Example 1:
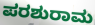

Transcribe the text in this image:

ಪರಶುರಾಮ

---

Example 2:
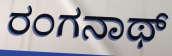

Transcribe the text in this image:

ರಂಗನಾಥ್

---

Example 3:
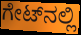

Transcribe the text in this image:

ಗೇಟ್‌ನಲ್ಲಿ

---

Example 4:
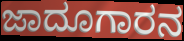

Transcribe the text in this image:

ಜಾದೂಗಾರನ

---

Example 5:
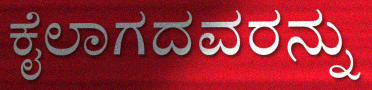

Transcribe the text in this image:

ಕೈಲಾಗದವರನ್ನು